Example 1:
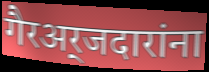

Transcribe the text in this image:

गैरअर्जदारांना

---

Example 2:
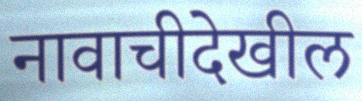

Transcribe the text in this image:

नावाचीदेखील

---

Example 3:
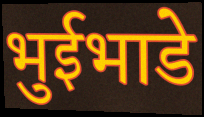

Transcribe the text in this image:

भुईभाडे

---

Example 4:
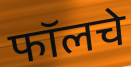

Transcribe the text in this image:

फॉलचे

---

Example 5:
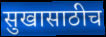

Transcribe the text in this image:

सुखासाठीच